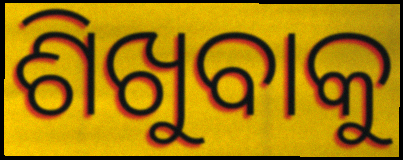
ଶିଖୁବାକୁ